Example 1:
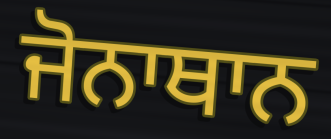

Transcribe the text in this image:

ਜੋਨਾਥਾਨ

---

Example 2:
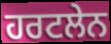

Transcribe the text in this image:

ਹਰਟਲੇਨ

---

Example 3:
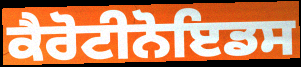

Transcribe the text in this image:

ਕੈਰੋਟੀਨੋਇਡਸ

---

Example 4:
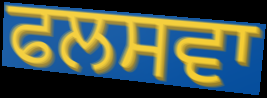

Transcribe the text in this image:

ਫਲਸਵਾ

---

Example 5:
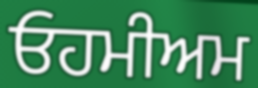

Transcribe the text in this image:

ਓਹਮੀਅਮ